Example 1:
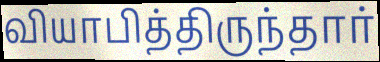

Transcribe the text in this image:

வியாபித்திருந்தார்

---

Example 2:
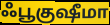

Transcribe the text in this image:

ஃபூகுஷீமா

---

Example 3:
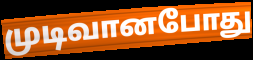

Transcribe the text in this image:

முடிவானபோது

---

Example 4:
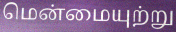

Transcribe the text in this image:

மென்மையுற்று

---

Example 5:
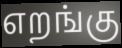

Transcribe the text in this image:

எறங்கு